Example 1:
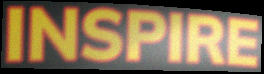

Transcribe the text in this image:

INSPIRE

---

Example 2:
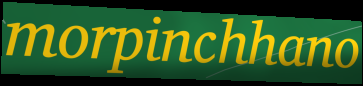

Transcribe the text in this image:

morpinchhano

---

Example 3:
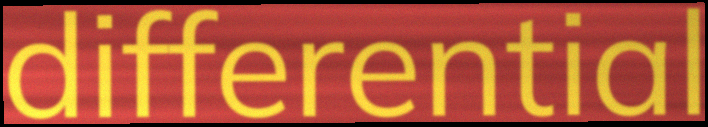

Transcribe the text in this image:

differential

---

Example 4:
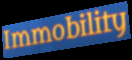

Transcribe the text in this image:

Immobility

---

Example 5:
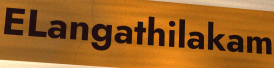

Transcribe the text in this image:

ELangathilakam